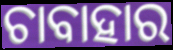
ଚାବାହାର